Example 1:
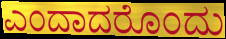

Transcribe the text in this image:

ಎಂದಾದರೊಂದು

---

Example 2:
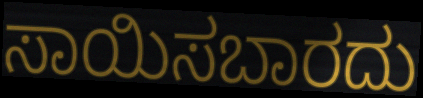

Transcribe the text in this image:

ಸಾಯಿಸಬಾರದು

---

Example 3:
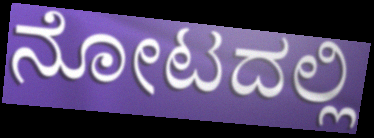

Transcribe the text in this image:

ನೋಟದಲ್ಲಿ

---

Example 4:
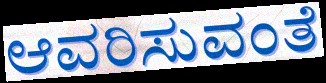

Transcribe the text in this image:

ಆವರಿಸುವಂತೆ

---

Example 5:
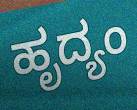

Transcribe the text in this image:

ಹೃದ್ಯಂ